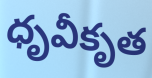
ధృవీకృత